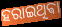
ହରାଇଥିଵା